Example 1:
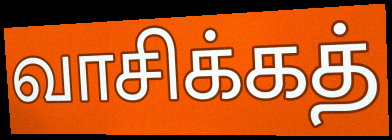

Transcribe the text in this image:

வாசிக்கத்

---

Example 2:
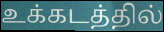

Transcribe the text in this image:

உக்கடத்தில்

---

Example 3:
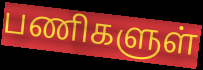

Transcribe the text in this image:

பணிகளுள்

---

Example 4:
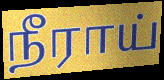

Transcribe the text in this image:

நீராய்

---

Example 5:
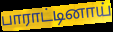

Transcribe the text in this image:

பாராட்டினாய்